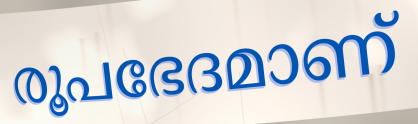
രൂപഭേദമാണ്